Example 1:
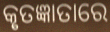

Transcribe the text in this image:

କୃତଜ୍ଞାତାରେ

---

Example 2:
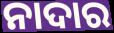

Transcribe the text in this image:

ନାଦାର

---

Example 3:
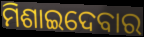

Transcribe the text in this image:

ମିଶାଇଦେବାର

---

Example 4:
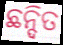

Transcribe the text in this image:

ଛନ୍ଦିତ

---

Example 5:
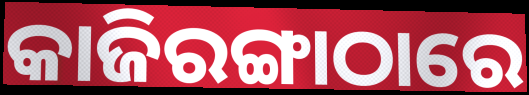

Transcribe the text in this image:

କାଜିରଙ୍ଗାଠାରେ